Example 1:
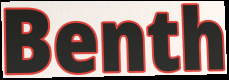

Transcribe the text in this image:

Benth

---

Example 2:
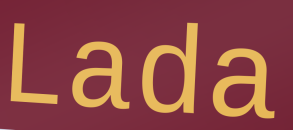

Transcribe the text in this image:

Lada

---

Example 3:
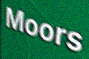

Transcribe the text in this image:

Moors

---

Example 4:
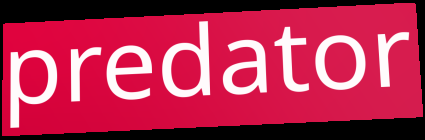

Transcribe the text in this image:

predator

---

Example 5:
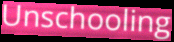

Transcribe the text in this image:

Unschooling